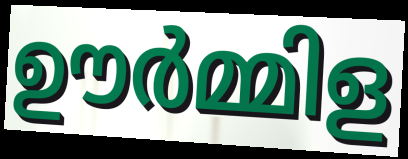
ഊർമ്മിള